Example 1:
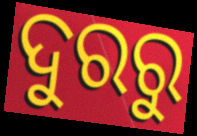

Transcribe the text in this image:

ଦୁରରୁ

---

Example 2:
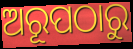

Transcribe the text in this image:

ଅରୂପଠାରୁ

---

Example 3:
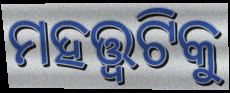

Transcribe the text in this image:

ମହତ୍ତ୍ୱଟିକୁ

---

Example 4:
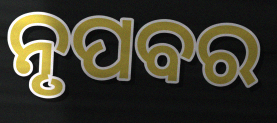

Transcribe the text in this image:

ନୃପବର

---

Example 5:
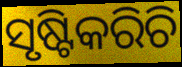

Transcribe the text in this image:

ସୃଷ୍ଟିକରିଚି